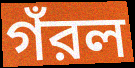
গঁরল